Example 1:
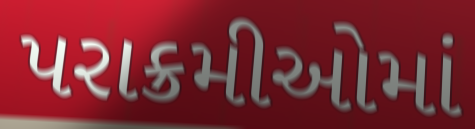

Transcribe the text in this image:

પરાક્રમીઓમાં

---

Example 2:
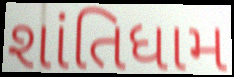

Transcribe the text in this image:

શાંતિધામ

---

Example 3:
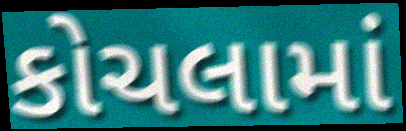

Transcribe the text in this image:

કોચલામાં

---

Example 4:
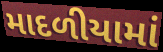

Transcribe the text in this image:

માદળીયામાં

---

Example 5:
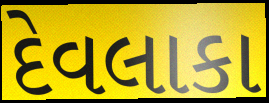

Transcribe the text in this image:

દેવલાકા